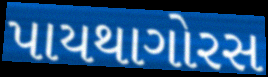
પાયથાગોરસ